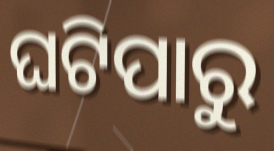
ଘଟିପାରୁ